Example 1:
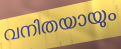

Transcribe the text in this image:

വനിതയായും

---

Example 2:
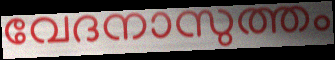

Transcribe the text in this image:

വേദനാസുത്തം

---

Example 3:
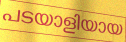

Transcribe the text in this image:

പടയാളിയായ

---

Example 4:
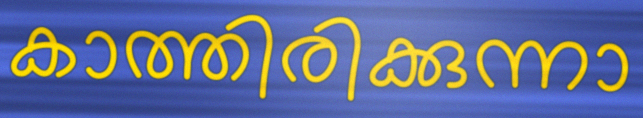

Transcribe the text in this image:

കാത്തിരിക്കുന്നാ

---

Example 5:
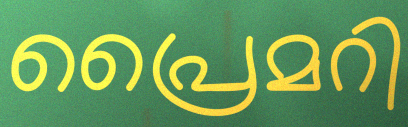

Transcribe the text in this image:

പ്രൈമറി